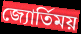
জ্যোর্তিময়